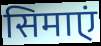
सिमाएं